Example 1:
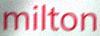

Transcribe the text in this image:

milton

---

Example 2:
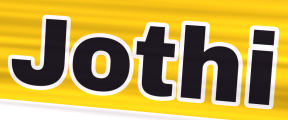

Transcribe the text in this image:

Jothi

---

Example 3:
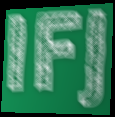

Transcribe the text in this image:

IFJ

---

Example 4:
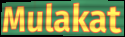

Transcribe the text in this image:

Mulakat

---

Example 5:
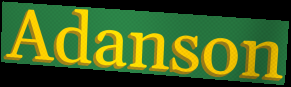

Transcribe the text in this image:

Adanson